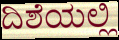
ದಿಶೆಯಲ್ಲಿ